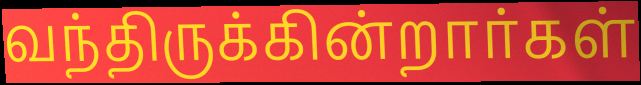
வந்திருக்கின்றார்கள்